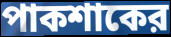
পাকশাকের